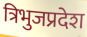
त्रिभुजप्रदेश